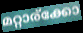
മറ്റാര്ക്കോ